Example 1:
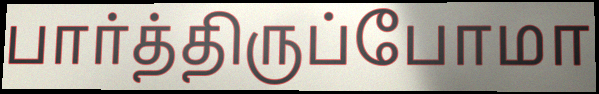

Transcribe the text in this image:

பார்த்திருப்போமா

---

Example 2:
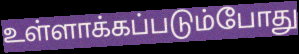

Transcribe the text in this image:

உள்ளாக்கப்படும்போது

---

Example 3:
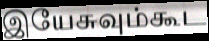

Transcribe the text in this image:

இயேசுவும்கூட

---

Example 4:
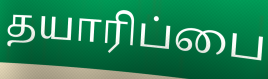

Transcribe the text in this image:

தயாரிப்பை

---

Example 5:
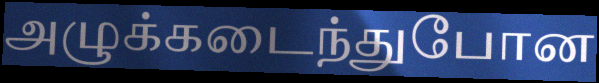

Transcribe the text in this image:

அழுக்கடைந்துபோன